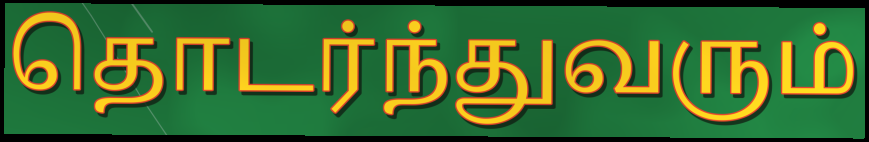
தொடர்ந்துவரும்